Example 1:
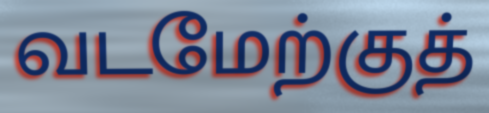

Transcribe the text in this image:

வடமேற்குத்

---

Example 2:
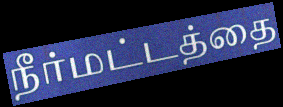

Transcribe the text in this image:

நீர்மட்டத்தை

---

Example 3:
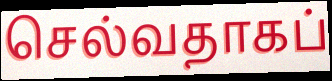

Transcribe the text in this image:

செல்வதாகப்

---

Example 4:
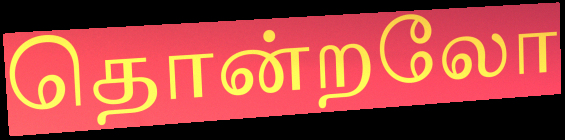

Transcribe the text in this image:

தொன்றலோ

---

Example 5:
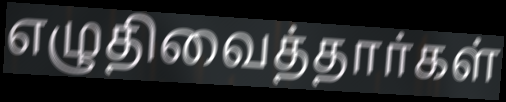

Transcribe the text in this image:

எழுதிவைத்தார்கள்